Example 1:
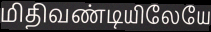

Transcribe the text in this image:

மிதிவண்டியிலேயே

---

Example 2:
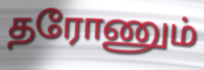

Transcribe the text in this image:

தரோணும்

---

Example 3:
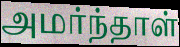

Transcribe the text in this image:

அமர்ந்தாள்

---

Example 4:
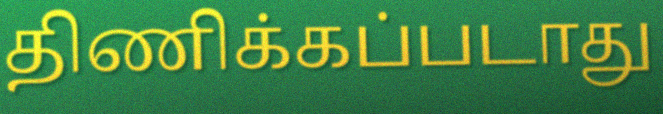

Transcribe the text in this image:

திணிக்கப்படாது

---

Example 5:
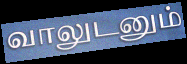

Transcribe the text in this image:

வாலுடனும்